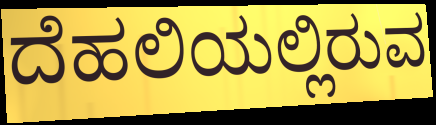
ದೆಹಲಿಯಲ್ಲಿರುವ